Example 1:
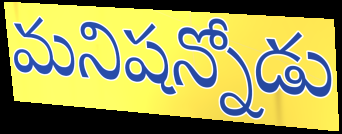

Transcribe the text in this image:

మనిషన్నోడు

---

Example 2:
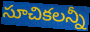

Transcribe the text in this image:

సూచికలన్నీ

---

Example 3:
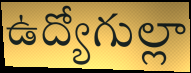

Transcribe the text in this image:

ఉద్యోగుల్లా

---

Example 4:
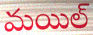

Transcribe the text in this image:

మయిల్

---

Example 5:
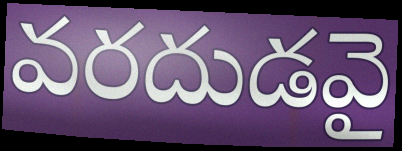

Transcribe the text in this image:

వరదుడవై